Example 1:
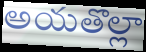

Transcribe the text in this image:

అయతొల్లా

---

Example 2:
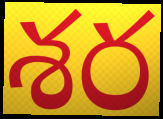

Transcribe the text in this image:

శర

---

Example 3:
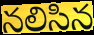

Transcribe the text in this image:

నలిసిన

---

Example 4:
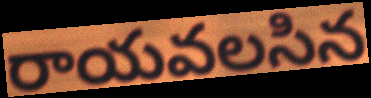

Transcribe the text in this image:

రాయవలసిన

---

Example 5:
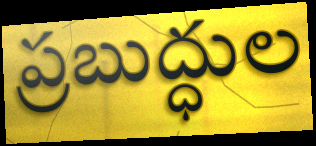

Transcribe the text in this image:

ప్రబుద్ధుల